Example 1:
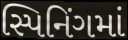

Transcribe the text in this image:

સ્પિનિંગમાં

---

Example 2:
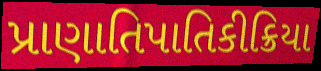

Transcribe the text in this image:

પ્રાણાતિપાતિકીક્રિયા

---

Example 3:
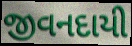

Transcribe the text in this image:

જીવનદાયી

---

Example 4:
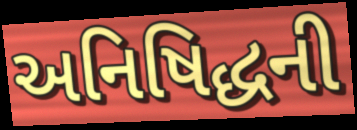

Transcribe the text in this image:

અનિષિદ્ધની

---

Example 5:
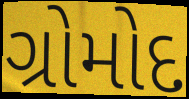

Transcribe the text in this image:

ગ્રોમોદ